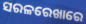
ସରଳରେଖାରେ